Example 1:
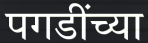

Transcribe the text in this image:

पगडींच्या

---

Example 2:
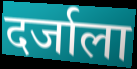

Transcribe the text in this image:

दर्जाला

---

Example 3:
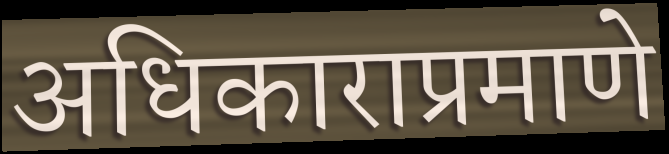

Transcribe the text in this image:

अधिकाराप्रमाणे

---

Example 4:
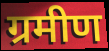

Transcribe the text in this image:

ग्रमीण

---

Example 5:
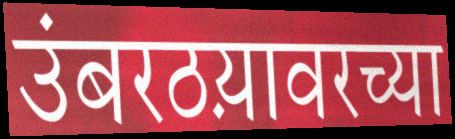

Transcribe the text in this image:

उंबरठय़ावरच्या